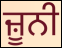
ਜ਼ੂਨੀ